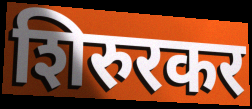
शिरुरकर